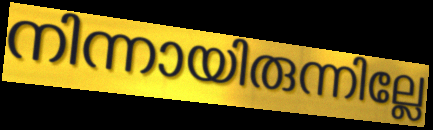
നിന്നായിരുന്നില്ലേ